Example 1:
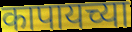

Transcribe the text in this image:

कापायच्या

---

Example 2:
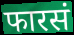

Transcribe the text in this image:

फारसं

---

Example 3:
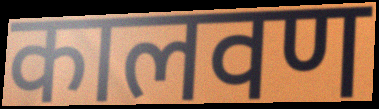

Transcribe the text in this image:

कालवण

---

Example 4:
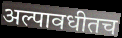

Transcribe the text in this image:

अल्पावधीतच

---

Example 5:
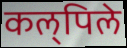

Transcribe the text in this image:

कल्पिले